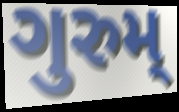
ગુરુમ્